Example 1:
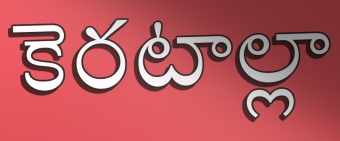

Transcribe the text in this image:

కెరటాల్లా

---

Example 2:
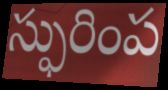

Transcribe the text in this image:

స్ఫురింప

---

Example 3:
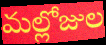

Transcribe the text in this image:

మల్లోజుల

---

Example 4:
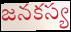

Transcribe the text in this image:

జనకస్య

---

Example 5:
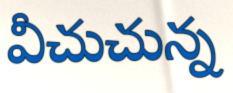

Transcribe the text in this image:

వీచుచున్న